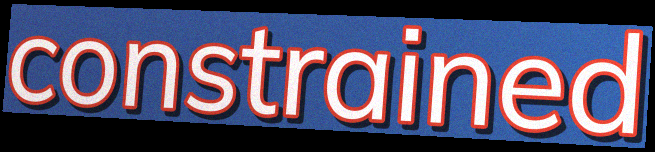
constrained